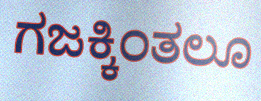
ಗಜಕ್ಕಿಂತಲೂ